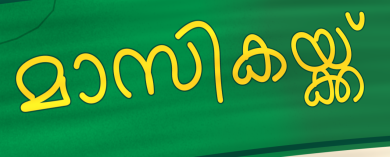
മാസികയ്ക്ക്